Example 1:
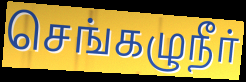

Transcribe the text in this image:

செங்கழுநீர்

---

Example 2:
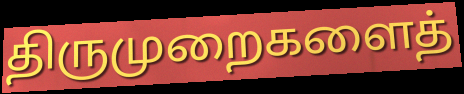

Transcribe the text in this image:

திருமுறைகளைத்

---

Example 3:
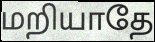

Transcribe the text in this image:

மறியாதே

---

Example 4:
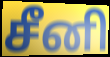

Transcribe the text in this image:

சீனி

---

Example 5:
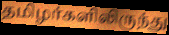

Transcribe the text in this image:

தமிழர்களிலிருந்து